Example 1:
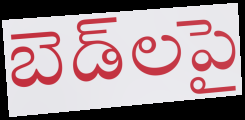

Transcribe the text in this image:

బెడ్‌లపై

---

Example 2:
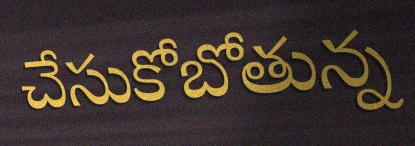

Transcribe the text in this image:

చేసుకోబోతున్న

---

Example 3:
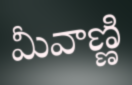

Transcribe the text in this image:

మీవాణ్ణి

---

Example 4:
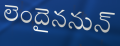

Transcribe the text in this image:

లెందైననున్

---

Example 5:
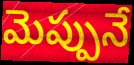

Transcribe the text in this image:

మెప్పునే